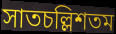
সাতচল্লিশতম